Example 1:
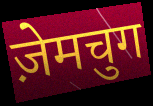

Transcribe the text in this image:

ज़ेमचुग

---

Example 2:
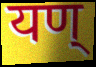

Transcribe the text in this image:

यण्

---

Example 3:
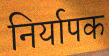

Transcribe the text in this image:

निर्यापक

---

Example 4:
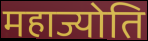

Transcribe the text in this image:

महाज्योति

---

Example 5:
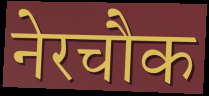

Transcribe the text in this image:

नेरचौक